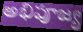
అభిపూజ్య